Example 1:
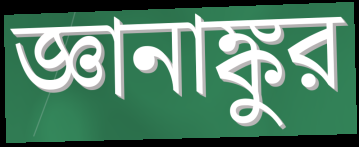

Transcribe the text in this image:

জ্ঞানাঙ্কুর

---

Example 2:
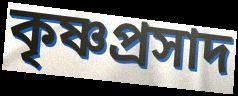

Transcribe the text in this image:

কৃষ্ণপ্রসাদ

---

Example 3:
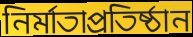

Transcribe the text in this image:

নির্মাতাপ্রতিষ্ঠান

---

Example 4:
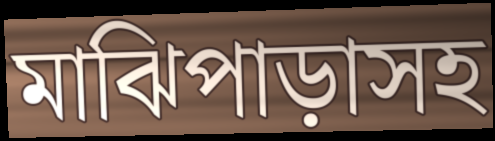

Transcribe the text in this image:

মাঝিপাড়াসহ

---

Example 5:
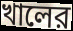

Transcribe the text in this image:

খালের